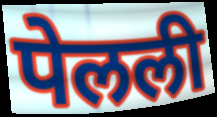
पेलली